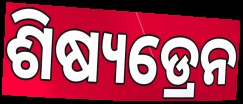
ଶିଷ୍ୟଡ୍ରେନ